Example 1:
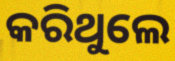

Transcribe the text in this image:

କରିଥୁଲେ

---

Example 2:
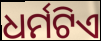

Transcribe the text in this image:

ଧର୍ମଟିଏ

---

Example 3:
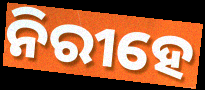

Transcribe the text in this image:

ନିରୀହେ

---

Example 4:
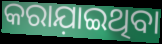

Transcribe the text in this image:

କରାଯ଼ାଇଥିବା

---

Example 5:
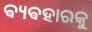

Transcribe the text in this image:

ଵ୍ୟଵହାରକୁ